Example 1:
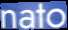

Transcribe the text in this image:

nato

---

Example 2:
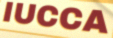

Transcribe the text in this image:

IUCCA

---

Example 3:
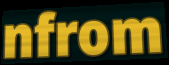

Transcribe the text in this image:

nfrom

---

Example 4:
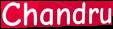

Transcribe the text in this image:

Chandru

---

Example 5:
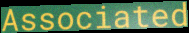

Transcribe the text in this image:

Associated